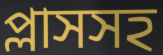
প্লাসসহ